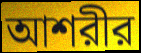
আশরীর